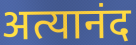
अत्यानंद